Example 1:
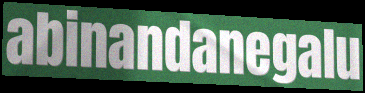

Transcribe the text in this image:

abinandanegalu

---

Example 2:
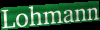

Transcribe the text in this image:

Lohmann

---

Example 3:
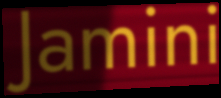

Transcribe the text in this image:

Jamini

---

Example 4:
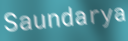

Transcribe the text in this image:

Saundarya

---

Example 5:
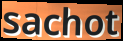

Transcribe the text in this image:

sachot